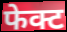
फेक्ट